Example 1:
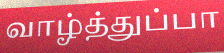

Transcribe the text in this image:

வாழ்த்துப்பா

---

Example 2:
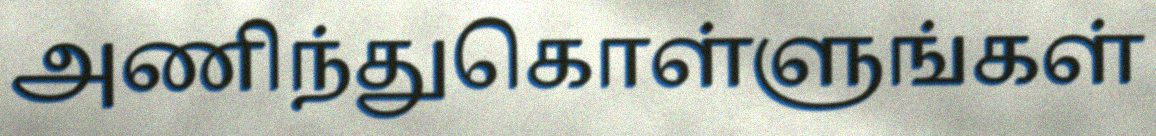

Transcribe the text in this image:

அணிந்துகொள்ளுங்கள்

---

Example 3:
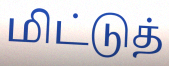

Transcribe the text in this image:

மிட்டுத்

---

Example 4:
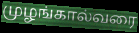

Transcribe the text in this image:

முழங்கால்வரை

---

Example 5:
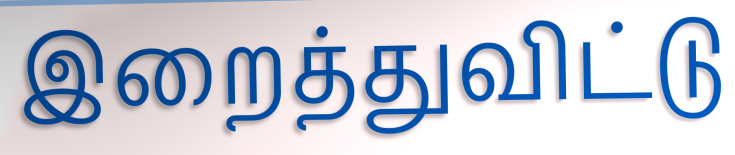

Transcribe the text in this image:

இறைத்துவிட்டு